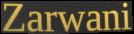
Zarwani